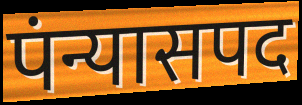
पंन्यासपद